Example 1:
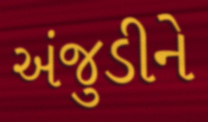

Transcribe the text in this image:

અંજુડીને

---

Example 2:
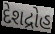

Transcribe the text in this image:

દેશદ્રોહ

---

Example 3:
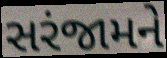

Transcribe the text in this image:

સરંજામને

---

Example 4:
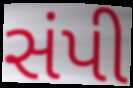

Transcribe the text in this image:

સંપી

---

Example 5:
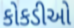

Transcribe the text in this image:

કોકડીઓ